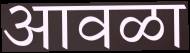
आवळा